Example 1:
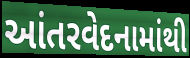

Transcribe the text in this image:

આંતરવેદનામાંથી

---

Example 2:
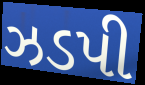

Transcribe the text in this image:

ઝડપી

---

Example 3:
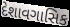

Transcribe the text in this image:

દેશાવગાસિક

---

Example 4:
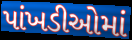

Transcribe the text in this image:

પાંખડીઓમાં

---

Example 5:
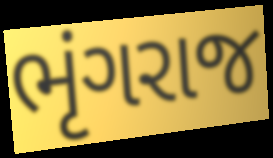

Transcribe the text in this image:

ભૃંગરાજ